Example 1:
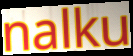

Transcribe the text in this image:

nalku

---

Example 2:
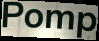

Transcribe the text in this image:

Pomp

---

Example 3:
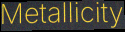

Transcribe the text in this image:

Metallicity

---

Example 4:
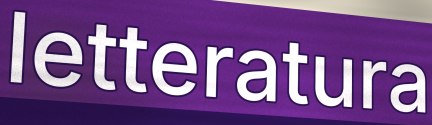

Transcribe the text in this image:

letteratura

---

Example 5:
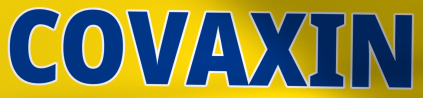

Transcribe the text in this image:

COVAXIN